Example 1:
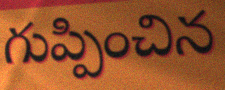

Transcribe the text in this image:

గుప్పించిన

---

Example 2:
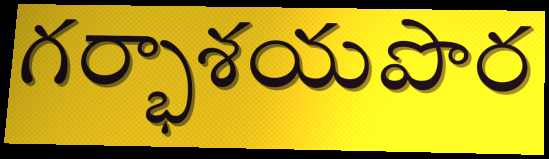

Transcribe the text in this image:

గర్భాశయపొర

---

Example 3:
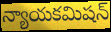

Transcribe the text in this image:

న్యాయకమిషన్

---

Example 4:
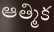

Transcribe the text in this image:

ఆత్మిక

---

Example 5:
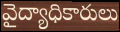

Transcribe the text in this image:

వైద్యాధికారులు